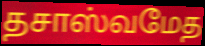
தசாஸ்வமேத